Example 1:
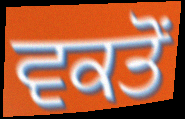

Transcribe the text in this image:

ਵਕਤੋਂ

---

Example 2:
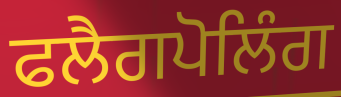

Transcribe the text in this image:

ਫਲੈਗਪੋਲਿੰਗ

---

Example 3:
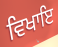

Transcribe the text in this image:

ਵਿਖਾਇ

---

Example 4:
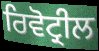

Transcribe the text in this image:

ਰਿਵੋਟ੍ਰੀਲ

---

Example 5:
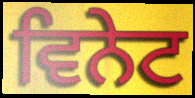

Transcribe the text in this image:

ਵਿਨੇਟ